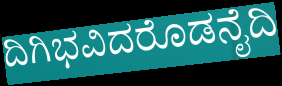
ದಿಗಿಭವಿದರೊಡನೈದಿ